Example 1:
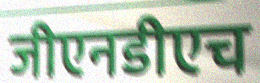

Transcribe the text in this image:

जीएनडीएच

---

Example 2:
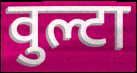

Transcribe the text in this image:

वुल्टा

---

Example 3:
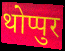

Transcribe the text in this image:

थोप्पुर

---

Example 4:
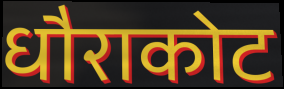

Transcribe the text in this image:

धौराकोट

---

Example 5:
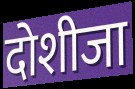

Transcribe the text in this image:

दोशीजा